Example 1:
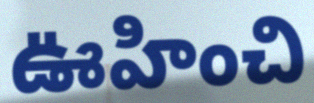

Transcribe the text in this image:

ఊహించి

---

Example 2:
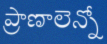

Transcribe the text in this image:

ప్రాణాలెన్నో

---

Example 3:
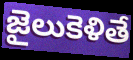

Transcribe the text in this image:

జైలుకెళితే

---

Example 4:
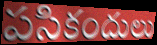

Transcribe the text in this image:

పసికందులు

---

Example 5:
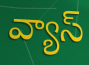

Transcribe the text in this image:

వ్యాస్